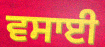
ਵਸਾਈ